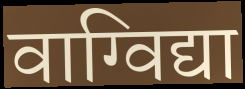
वाग्विद्या